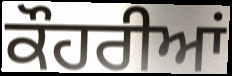
ਕੌਹਰੀਆਂ